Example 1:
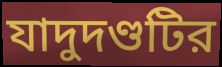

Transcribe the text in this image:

যাদুদণ্ডটির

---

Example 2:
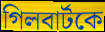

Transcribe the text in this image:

গিলবার্টকে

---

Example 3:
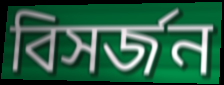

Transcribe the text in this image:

বিসর্জন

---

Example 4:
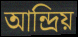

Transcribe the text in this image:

আন্দ্রিয়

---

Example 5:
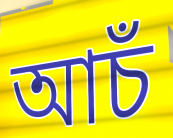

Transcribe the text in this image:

আচঁ